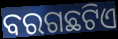
ବରଗଛଟିଏ